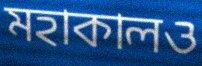
মহাকালও